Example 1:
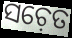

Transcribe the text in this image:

ସଚ଼େତ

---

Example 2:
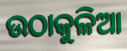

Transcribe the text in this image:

ଉଠାକୁଳିଆ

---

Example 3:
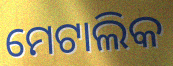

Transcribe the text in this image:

ମେଟାଲିକ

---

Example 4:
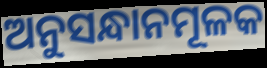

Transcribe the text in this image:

ଅନୁସନ୍ଧାନମୂଳକ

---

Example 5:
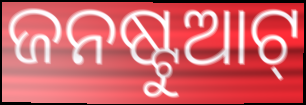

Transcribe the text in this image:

ଜନଷ୍ଟୁଆଟ୍